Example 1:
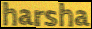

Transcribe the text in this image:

harsha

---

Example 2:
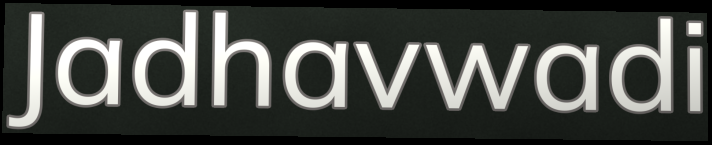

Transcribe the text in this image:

Jadhavwadi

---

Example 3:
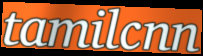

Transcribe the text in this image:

tamilcnn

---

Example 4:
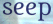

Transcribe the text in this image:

seep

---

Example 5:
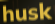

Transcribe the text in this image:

husk